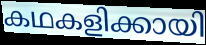
കഥകളിക്കായി